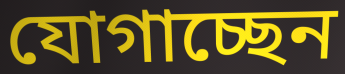
যোগাচ্ছেন